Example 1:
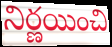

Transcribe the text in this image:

నిర్ణయించి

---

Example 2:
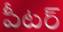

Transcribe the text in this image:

పీటర్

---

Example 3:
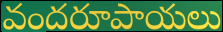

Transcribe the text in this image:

వందరూపాయలు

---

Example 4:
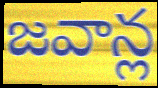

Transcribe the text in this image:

జవాన్ల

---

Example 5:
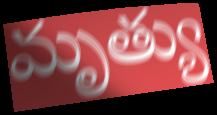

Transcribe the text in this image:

మృత్యు